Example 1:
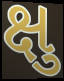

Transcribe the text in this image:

ક્ષુ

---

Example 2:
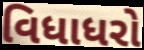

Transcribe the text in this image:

વિધાધરો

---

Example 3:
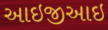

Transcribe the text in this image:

આઇજીઆઇ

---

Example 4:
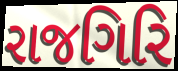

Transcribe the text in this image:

રાજગિરિ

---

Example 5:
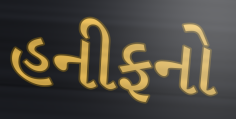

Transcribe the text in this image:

હનીફનો